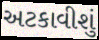
અટકાવીશું